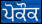
ਪੋਕੌਕ